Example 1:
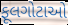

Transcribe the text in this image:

ફૂલગોટાઓ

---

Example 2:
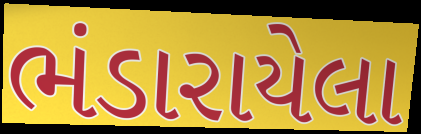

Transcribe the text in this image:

ભંડારાયેલા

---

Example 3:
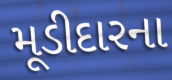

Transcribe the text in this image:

મૂડીદારના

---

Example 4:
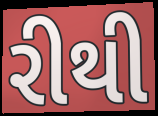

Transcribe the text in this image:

રીથી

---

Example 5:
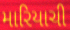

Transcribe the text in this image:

મારિયાચી